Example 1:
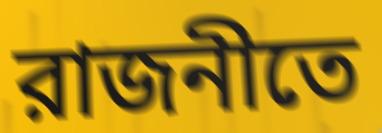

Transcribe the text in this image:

রাজনীতে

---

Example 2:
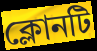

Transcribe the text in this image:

ক্লোনটি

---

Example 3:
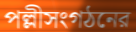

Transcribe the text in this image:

পল্লীসংগঠনের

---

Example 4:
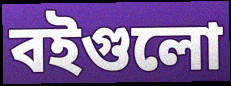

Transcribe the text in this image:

বইগুলো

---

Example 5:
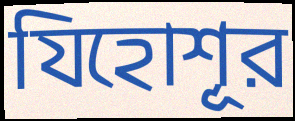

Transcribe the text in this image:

যিহোশূর